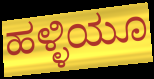
ಹಳ್ಳಿಯೂ